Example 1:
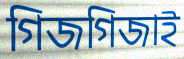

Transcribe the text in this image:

গিজগিজাই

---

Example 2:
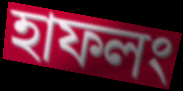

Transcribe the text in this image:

হাফলং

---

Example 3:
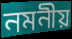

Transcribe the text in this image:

নমনীয়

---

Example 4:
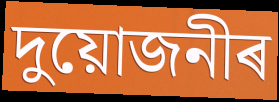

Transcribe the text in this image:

দুয়োজনীৰ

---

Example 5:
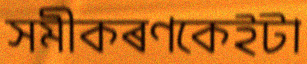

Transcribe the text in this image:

সমীকৰণকেইটা